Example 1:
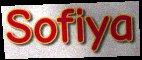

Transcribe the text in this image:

Sofiya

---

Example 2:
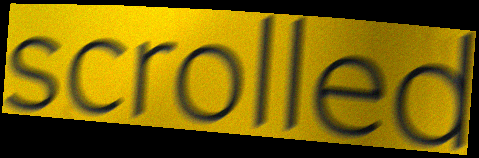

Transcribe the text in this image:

scrolled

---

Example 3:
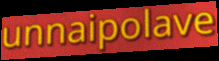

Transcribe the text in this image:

unnaipolave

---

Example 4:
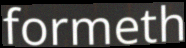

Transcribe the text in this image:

formeth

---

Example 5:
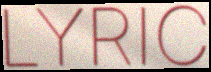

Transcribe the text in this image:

LYRIC